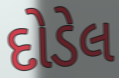
દોડેલ